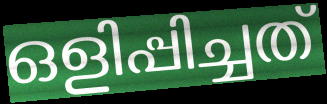
ഒളിപ്പിച്ചത്